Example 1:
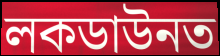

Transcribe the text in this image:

লকডাউনত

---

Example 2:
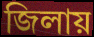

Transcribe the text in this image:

জিলায়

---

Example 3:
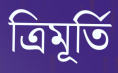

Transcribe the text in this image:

ত্ৰিমূৰ্তি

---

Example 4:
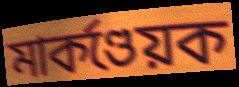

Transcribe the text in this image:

মাৰ্কণ্ডেয়ক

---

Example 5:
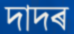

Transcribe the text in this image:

দাদৰ